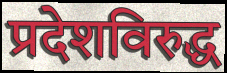
प्रदेशविरुद्ध